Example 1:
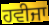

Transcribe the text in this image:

ਹਵੀਜਾ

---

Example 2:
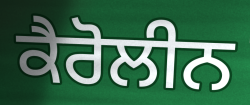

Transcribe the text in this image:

ਕੈਰੋਲੀਨ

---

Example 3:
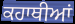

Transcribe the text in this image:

ਕਹਾਥੀਆਂ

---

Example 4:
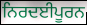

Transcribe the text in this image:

ਨਿਰਦਈਪੂਰਨ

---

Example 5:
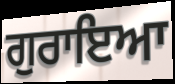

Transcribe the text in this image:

ਗੁਰਾਇਆ